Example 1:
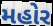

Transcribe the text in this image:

મહોર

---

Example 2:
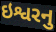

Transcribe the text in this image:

ઇશ્વરનુ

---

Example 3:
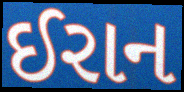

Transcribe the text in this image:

ઈરાન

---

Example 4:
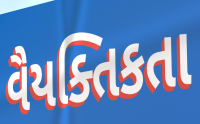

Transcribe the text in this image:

વૈયક્તિકતા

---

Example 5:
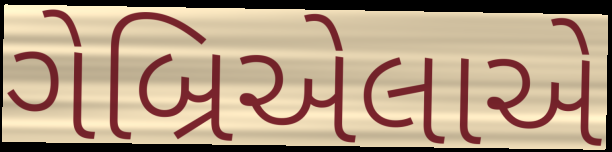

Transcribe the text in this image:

ગેબ્રિએલાએ